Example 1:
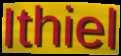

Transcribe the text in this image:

Ithiel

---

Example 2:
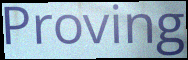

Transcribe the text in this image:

Proving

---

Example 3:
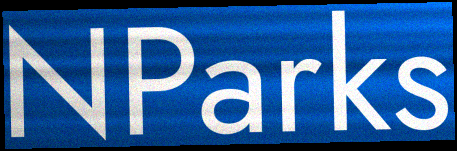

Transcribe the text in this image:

NParks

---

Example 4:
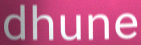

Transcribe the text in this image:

dhune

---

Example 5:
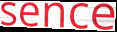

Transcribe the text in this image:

sence